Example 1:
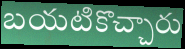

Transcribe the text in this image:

బయటికొచ్చారు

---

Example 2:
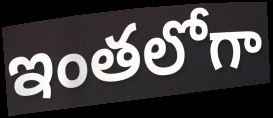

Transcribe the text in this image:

ఇంతలోగా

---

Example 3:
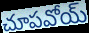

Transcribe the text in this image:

చూపవోయ్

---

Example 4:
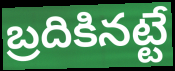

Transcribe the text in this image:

బ్రదికినట్టే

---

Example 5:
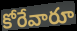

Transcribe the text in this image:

కోరేవారూ